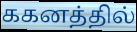
ககனத்தில்